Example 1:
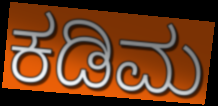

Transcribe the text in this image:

ಕಡಿಮ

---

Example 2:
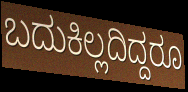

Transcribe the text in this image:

ಬದುಕಿಲ್ಲದಿದ್ದರೂ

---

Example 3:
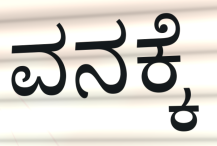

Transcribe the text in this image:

ವನಕ್ಕೆ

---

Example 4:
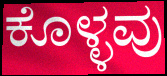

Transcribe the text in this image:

ಕೊಳ್ಳವು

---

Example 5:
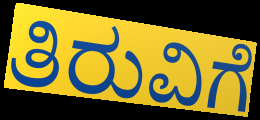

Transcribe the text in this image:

ತಿರುವಿಗೆ